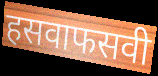
हसवाफसवी